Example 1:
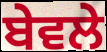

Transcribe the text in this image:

ਬੇਵਲੇ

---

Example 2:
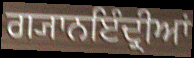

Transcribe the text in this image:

ਗ੍ਯਾਨਇੰਦ੍ਰੀਆਂ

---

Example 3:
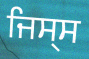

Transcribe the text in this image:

ਜਿਸ੍ਸ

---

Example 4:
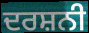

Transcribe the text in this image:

ਦਰਸ਼ਨੀ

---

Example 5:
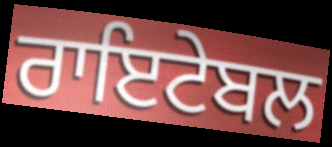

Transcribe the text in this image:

ਰਾਇਟੇਬਲ